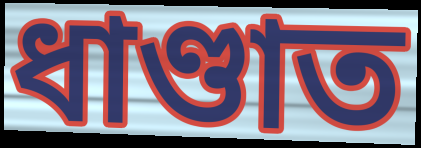
ধাণ্ডাত